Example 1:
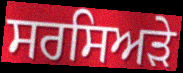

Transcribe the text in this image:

ਸਰਸਿਅੜੇ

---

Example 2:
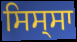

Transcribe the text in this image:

ਸਿਸ੍ਸਾ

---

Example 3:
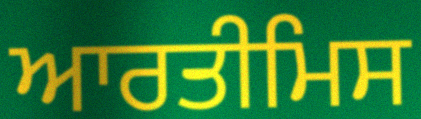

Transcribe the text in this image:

ਆਰਤੀਮਿਸ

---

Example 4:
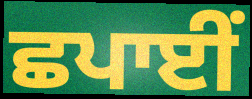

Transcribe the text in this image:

ਛਪਾਈਂ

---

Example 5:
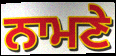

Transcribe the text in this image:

ਨਾਮਣੇ